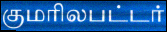
குமரிலபட்டர்